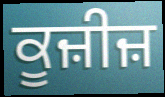
ਕੂਜ਼ੀਜ਼